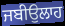
ਜਬੀਉਲਾਹ